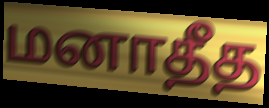
மனாதீத